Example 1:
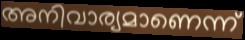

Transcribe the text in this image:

അനിവാര്യമാണെന്ന്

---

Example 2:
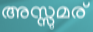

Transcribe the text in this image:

അസ്സുമര്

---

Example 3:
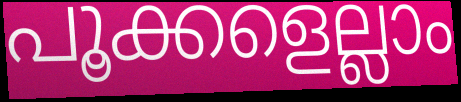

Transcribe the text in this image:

പൂക്കളെല്ലാം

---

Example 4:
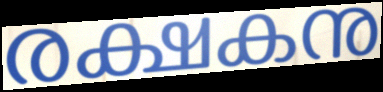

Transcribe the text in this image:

രക്ഷകനു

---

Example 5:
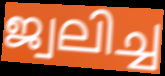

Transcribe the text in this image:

ജ്വലിച്ച